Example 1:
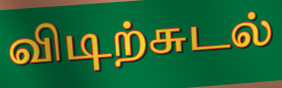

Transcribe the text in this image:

விடிற்சுடல்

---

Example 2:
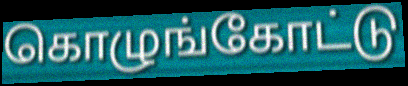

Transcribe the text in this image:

கொழுங்கோட்டு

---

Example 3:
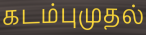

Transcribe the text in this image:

கடம்புமுதல்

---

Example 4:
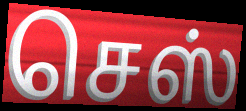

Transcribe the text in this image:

செஸ்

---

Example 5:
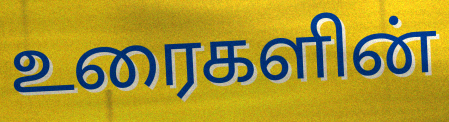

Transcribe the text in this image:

உரைகளின்